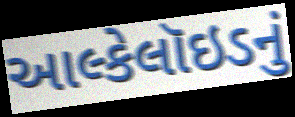
આલ્કેલૉઇડનું